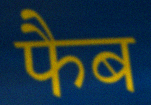
फैब